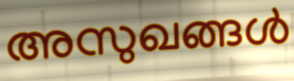
അസുഖങ്ങൾ